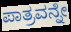
ಪಾತ್ರವನ್ನೇ